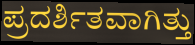
ಪ್ರದರ್ಶಿತವಾಗಿತ್ತು